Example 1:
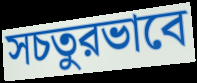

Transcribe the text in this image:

সচতুরভাবে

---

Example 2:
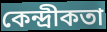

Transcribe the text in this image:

কেন্দ্রীকতা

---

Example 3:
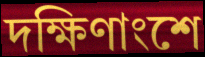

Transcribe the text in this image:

দক্ষিণাংশে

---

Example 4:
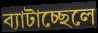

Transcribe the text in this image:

ব্যাটাচ্ছেলে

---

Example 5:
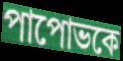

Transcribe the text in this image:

পাপোভকে